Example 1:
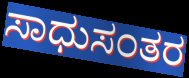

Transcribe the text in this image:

ಸಾಧುಸಂತರ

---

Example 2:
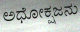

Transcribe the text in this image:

ಅಧೋಕ್ಷಜನು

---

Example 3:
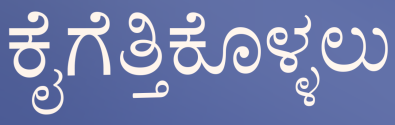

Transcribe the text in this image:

ಕೈಗೆತ್ತಿಕೊಳ್ಳಲು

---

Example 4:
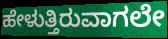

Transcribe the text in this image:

ಹೇಳುತ್ತಿರುವಾಗಲೇ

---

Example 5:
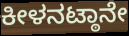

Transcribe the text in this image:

ಕೀಳನಟ್ಠಾನೇ